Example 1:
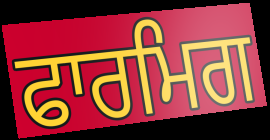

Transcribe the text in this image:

ਫਾਰਮਿਗ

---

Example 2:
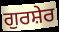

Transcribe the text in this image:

ਗੁਰਸ਼ੇਰ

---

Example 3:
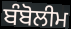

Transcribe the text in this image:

ਬੰਬੋਲੀਮ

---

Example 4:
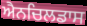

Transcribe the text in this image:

ਐਨਚਿਲਡਾਸ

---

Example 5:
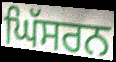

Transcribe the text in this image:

ਘਿੱਸਰਨ